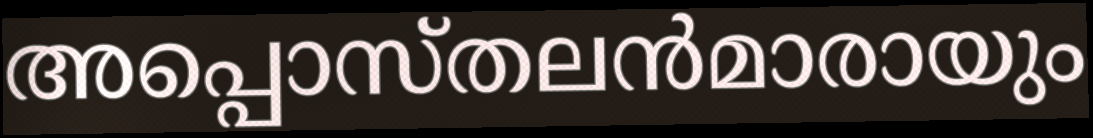
അപ്പൊസ്തലൻമാരായും